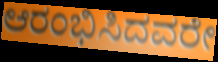
ಆರಂಭಿಸಿದವರೇ